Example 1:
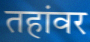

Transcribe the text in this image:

तहांवर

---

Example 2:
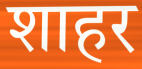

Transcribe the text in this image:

शाहर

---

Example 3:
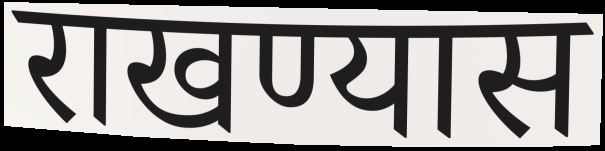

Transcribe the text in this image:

राखण्यास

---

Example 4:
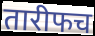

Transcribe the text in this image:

तारीफच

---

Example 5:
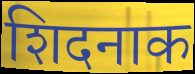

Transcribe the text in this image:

शिदनाक